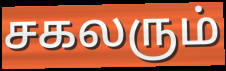
சகலரும்